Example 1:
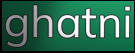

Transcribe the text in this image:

ghatni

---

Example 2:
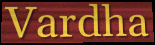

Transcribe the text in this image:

Vardha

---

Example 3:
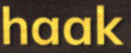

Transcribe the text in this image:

haak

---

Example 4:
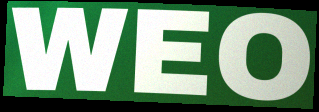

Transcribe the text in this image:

WEO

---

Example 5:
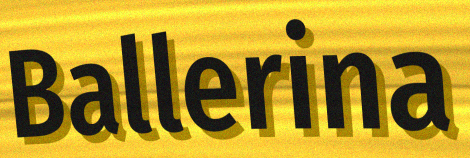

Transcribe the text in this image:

Ballerina